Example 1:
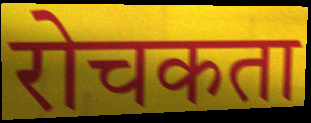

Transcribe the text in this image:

रोचकता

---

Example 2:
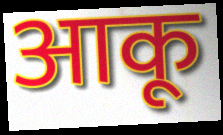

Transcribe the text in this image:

आकू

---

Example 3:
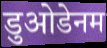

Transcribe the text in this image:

डुओडेनम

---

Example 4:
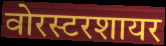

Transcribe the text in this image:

वोरस्टरशायर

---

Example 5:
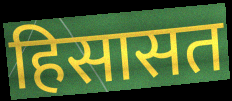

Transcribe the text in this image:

हिसासत